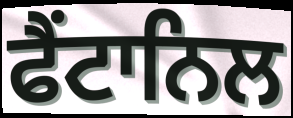
ਫੈਂਟਾਨਿਲ